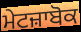
ਮੇਟਜ਼ਾਬੋਕ